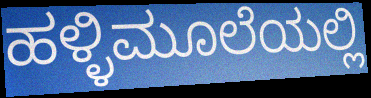
ಹಳ್ಳಿಮೂಲೆಯಲ್ಲಿ